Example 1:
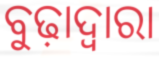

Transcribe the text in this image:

ବୁଢ଼ାଦ୍ୱାରା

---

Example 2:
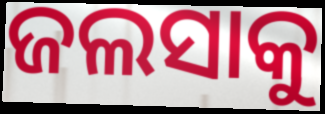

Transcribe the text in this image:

ଜଲସାକୁ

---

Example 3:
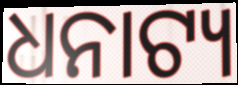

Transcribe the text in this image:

ଧନାଟ୍ୟ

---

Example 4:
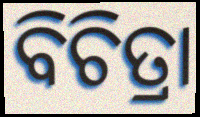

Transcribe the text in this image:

ବିଚିତ୍ରା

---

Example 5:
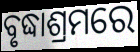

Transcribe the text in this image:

ବୃଦ୍ଧାଶ୍ରମରେ